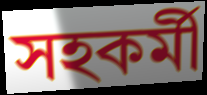
সহকৰ্মী